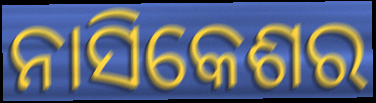
ନାସିକେଶର